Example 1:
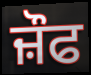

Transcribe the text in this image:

ਜ਼ੌਫ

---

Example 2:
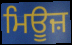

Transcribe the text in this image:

ਮਿਊਜ਼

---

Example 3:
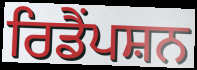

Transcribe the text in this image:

ਰਿਡੈਂਪਸ਼ਨ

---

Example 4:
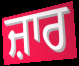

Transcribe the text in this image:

ਜ਼ਾਰ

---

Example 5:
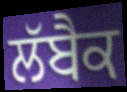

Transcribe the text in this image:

ਲੱਬੈਕ